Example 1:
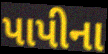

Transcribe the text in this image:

પાપીના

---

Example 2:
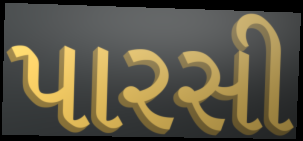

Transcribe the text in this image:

પારસી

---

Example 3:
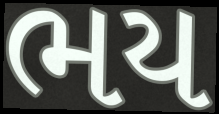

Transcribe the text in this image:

ભય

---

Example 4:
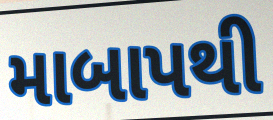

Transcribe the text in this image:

માબાપથી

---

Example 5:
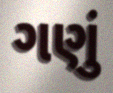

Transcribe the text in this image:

ગણું